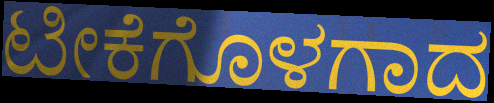
ಟೀಕೆಗೊಳಗಾದ